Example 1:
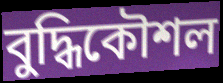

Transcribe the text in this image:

বুদ্ধিকৌশল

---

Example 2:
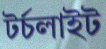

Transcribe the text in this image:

টর্চলাইট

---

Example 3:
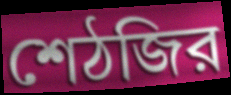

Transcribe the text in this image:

শেঠজির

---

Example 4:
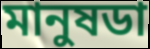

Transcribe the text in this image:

মানুষডা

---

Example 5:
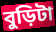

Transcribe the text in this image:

বুড়িটা